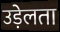
उड़ेलता